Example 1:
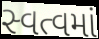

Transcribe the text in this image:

સ્વત્વમાં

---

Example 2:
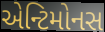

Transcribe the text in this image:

એન્ટિમોનસ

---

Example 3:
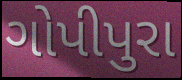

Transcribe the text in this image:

ગોપીપુરા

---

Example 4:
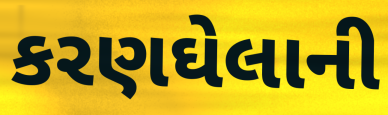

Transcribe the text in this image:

કરણઘેલાની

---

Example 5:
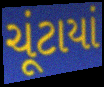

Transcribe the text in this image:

ચૂંટાયાં